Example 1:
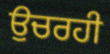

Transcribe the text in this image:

ਉਚਰਹੀ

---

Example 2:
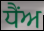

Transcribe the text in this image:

ਧੈਂਅ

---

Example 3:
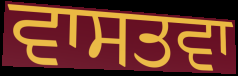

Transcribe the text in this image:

ਵਾਸਤਵਾ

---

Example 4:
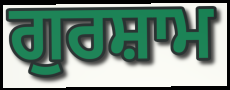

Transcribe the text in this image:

ਗੁਰਸ਼ਾਮ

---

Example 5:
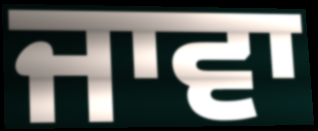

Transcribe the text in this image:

ਜਾਵਾ